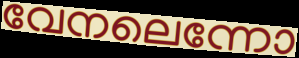
വേനലെന്നോ